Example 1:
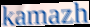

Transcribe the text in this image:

kamazh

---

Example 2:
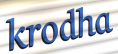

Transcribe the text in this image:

krodha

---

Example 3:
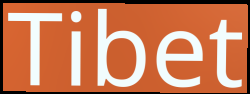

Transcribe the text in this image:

Tibet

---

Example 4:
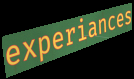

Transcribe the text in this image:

experiances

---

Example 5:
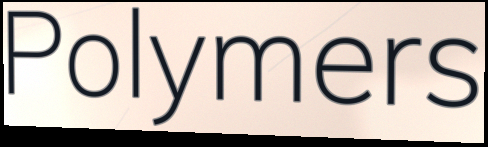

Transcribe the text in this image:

Polymers